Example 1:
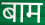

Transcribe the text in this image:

बाम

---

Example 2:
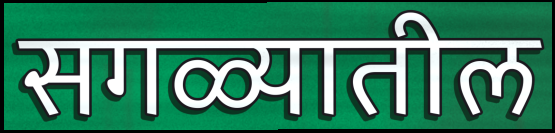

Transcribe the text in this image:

सगळ्यातील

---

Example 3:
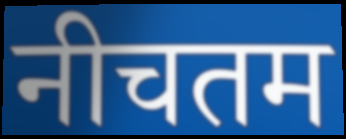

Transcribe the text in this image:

नीचतम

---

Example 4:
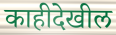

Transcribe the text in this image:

काहीदेखील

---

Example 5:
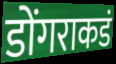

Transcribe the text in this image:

डोंगराकडं